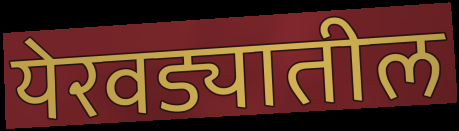
येरवड्यातील